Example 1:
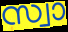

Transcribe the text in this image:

സ്വാ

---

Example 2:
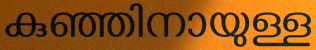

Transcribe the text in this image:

കുഞ്ഞിനായുള്ള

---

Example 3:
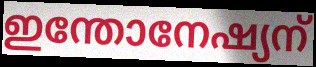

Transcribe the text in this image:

ഇന്തോനേഷ്യന്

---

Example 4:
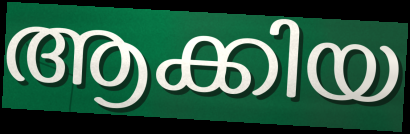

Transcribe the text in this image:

ആക്കിയ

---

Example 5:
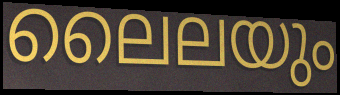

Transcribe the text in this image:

ലൈലയും